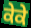
ਕੇਕੇ